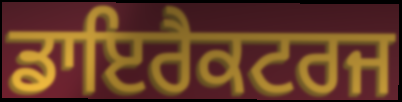
ਡਾਇਰੈਕਟਰਜ